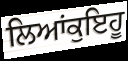
ਲਿਆਂਕੁਇਹੂ